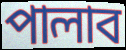
পালাব